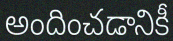
అందించడానికీ